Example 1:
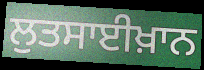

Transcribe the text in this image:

ਲੁਤਸਾਈਖ਼ਾਨ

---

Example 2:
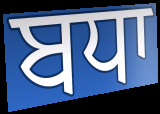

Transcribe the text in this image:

ਬਧਾ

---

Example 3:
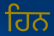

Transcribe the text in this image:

ਹਿਨ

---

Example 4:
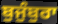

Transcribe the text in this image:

ਬੁਜੁੰਬੁਰਾ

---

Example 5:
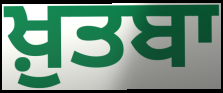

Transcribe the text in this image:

ਖ਼ੁਤਬਾ